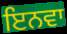
ਇਨਵਾ